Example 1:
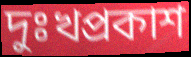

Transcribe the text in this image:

দুঃখপ্রকাশ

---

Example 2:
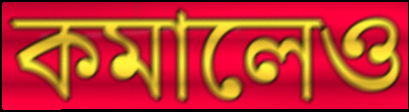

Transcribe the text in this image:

কমালেও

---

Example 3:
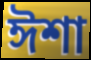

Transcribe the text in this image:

ঈশা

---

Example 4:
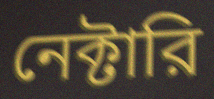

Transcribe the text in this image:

নেক্টারি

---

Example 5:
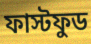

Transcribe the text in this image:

ফাস্টফুড